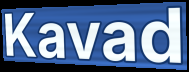
Kavad